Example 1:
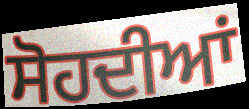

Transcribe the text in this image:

ਸੋਹਦੀਆਂ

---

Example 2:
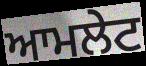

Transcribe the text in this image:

ਆਮਲੇਟ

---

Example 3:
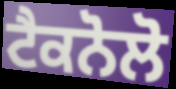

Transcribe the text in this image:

ਟੈਕਨੋਲੋ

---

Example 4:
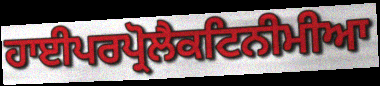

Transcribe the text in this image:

ਹਾਈਪਰਪ੍ਰੋਲੈਕਟਿਨੀਮੀਆ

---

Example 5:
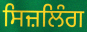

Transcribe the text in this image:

ਸਿਜ਼ਲਿੰਗ